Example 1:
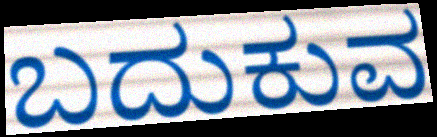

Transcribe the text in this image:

ಬದುಕುವ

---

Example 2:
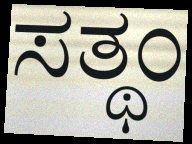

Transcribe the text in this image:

ಸತ್ಥಂ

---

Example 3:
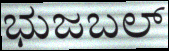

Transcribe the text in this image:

ಭುಜಬಲ್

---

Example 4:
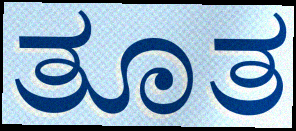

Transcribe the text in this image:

ತೂತ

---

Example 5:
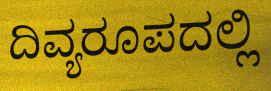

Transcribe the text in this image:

ದಿವ್ಯರೂಪದಲ್ಲಿ